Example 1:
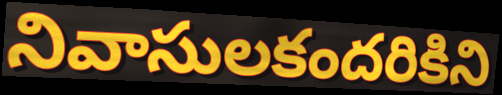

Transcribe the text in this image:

నివాసులకందరికిని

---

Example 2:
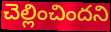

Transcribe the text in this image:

చెల్లించిందని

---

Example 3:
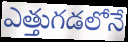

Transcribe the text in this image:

ఎత్తుగడలోనే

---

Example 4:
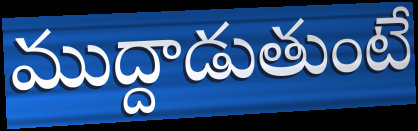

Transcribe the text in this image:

ముద్దాడుతుంటే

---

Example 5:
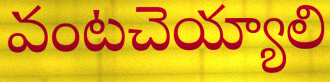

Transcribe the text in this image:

వంటచెయ్యాలి